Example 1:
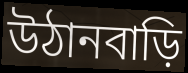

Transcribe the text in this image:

উঠানবাড়ি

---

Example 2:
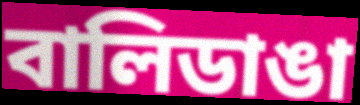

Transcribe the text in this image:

বালিডাঙা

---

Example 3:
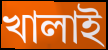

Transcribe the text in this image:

খালাই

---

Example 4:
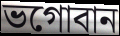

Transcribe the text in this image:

ভগোবান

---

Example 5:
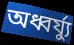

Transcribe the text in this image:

অধ্বর্য্যু